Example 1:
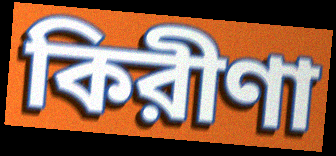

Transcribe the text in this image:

কিরীণা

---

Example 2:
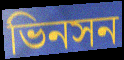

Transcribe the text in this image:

ভিনসন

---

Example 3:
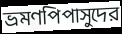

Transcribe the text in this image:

ভ্রমণপিপাসুদের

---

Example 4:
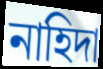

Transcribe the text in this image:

নাহিদা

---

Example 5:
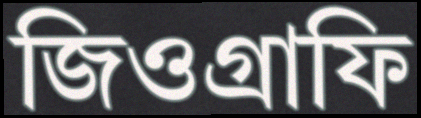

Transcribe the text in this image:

জিওগ্রাফি